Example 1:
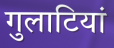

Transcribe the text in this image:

गुलाटियां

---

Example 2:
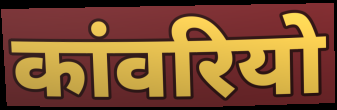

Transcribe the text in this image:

कांवरियो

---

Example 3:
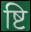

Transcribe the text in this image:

ष्टि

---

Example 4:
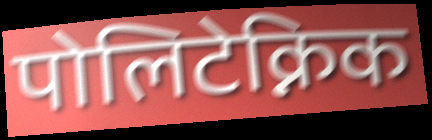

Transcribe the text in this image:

पोलिटेक्निक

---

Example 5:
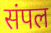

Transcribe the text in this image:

संपल